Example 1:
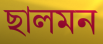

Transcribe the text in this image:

ছালমন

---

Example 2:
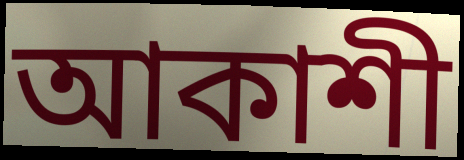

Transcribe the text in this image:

আকাশী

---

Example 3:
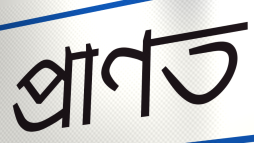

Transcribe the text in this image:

প্ৰাণত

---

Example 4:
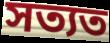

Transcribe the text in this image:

সত্যত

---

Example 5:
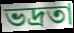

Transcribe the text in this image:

ভদ্ৰতা